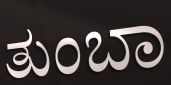
ತುಂಬಾ